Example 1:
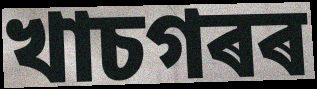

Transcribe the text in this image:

খাচগৰৰ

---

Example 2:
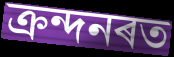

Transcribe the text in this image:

ক্ৰন্দনৰত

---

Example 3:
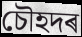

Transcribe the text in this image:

চৌহদৰ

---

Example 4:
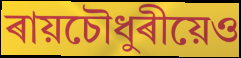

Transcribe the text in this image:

ৰায়চৌধুৰীয়েও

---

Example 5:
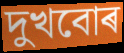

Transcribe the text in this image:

দুখবোৰ